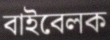
বাইবেলক